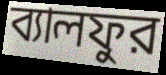
ব্যালফুর